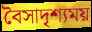
বৈসাদৃশ্যময়